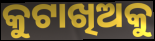
କୁଟାଖିଅକୁ